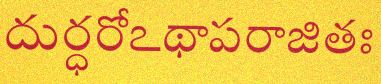
దుర్ధరోఽథాపరాజితః